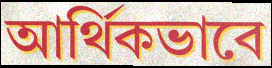
আৰ্থিকভাবে